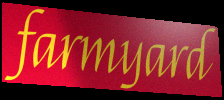
farmyard